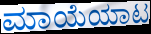
ಮಾಯೆಯಾಟ